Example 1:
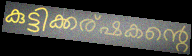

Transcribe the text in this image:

കുട്ടിക്കര്ഷകന്റെ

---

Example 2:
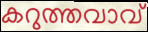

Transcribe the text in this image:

കറുത്തവാവ്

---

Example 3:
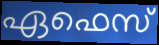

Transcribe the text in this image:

ഏഫെസ്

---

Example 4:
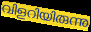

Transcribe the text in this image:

വിളറിയിരുന്നു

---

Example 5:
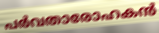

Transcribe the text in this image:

പർവതാരോഹകൻ